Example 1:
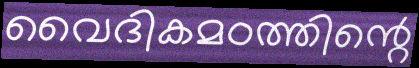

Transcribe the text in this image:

വൈദികമഠത്തിന്റെ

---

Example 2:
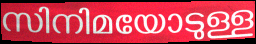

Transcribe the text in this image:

സിനിമയോടുള്ള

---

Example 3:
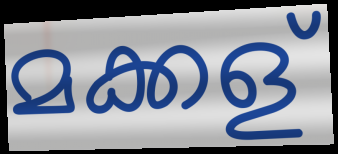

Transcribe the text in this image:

മക്കള്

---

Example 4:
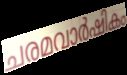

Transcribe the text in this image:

ചരമവാർഷികം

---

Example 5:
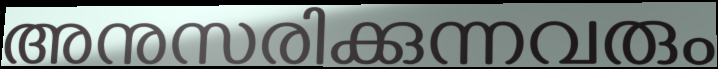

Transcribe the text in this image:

അനുസരിക്കുന്നവരും